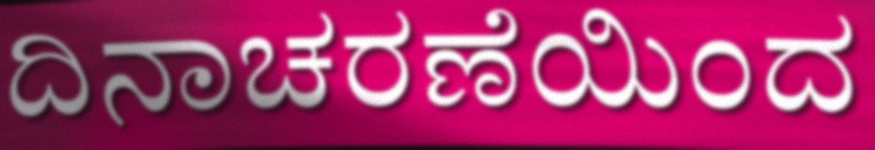
ದಿನಾಚರಣೆಯಿಂದ